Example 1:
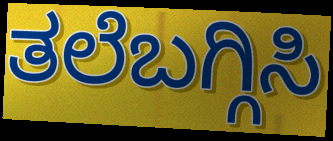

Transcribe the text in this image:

ತಲೆಬಗ್ಗಿಸಿ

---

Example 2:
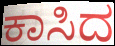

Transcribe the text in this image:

ಕಾಸಿದ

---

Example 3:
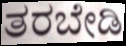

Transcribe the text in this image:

ತರಬೇಡಿ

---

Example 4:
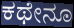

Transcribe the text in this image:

ಕಥೇನೂ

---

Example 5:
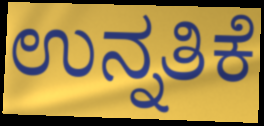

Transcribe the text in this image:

ಉನ್ನತಿಕೆ